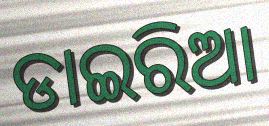
ଡାଇରିଆ